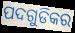
ପଦଗୁଡିକର